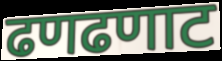
ढणढणाट